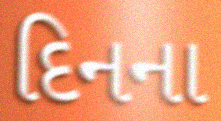
દિનના